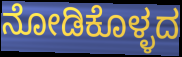
ನೋಡಿಕೊಳ್ಳದ